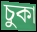
চুকা